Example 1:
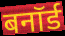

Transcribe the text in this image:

बनॉर्ड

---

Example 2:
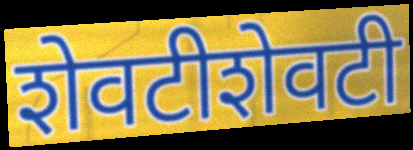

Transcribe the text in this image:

शेवटीशेवटी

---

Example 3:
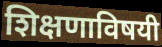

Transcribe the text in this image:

शिक्षणाविषयी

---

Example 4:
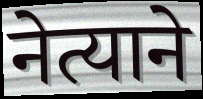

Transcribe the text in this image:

नेत्याने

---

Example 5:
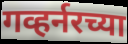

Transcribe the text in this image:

गव्हर्नरच्या